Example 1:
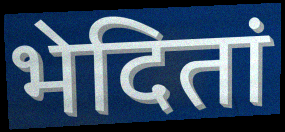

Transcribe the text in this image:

भेदितां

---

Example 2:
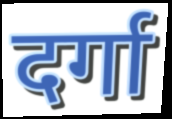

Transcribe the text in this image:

दर्गा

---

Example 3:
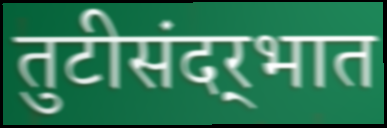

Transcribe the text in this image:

तुटीसंदर्भात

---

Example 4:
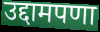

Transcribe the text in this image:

उद्दामपणा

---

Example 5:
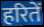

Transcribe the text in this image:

हरितें